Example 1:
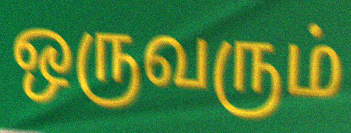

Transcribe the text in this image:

ஒருவரும்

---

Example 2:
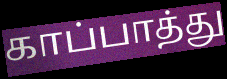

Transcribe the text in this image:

காப்பாத்து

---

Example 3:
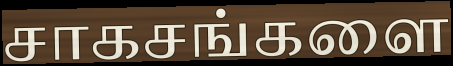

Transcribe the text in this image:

சாகசங்களை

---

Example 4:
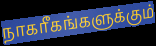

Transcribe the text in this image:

நாகரீகங்களுக்கும்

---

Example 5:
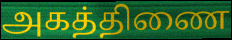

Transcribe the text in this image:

அகத்திணை